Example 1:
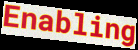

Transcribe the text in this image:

Enabling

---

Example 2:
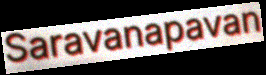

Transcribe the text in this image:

Saravanapavan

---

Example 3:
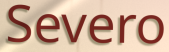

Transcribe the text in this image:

Severo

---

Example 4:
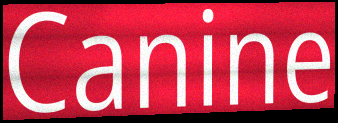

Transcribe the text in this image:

Canine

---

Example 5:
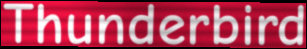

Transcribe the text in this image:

Thunderbird